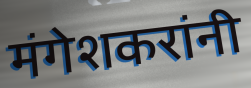
मंगेशकरांनी